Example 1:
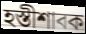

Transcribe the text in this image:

হস্তীশাবক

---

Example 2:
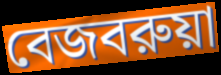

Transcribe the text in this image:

বেজবরুয়া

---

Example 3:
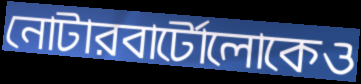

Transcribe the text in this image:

নোটারবার্টোলোকেও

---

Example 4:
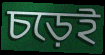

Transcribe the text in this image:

চড়েই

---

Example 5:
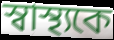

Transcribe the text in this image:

স্বাস্থ্যকে